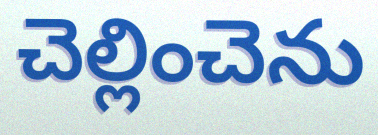
చెల్లించెను